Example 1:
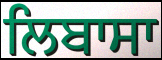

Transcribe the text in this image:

ਲਿਬਾਸਾ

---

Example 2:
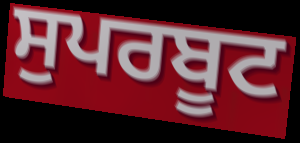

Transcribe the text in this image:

ਸੁਪਰਬੂਟ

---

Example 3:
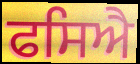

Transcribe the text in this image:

ਫਸਿਐ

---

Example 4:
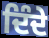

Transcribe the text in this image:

ਦਿੰਦੇ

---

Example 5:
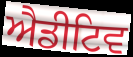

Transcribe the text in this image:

ਐਡੀਟਿਵ